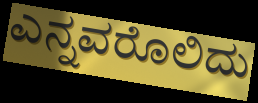
ಎನ್ನವರೊಲಿದು